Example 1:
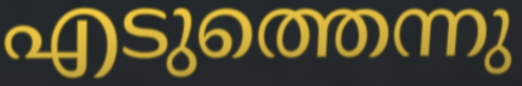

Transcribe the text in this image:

എടുത്തെന്നു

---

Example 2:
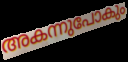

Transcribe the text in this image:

അകന്നുപോകും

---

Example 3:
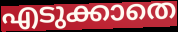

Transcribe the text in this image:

എടുക്കാതെ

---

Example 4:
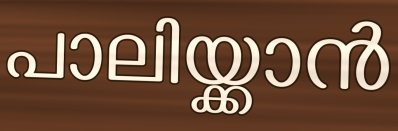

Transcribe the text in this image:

പാലിയ്ക്കാൻ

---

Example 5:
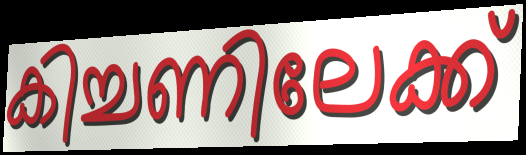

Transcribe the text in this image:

കിച്ചണിലേക്ക്